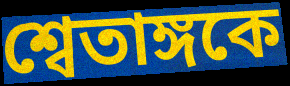
শ্বেতাঙ্গকে